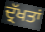
ਦ੍ਰੱਖਤਾਂ